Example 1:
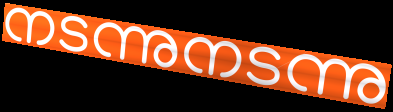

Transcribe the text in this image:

നടന്നുനടന്നു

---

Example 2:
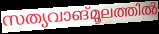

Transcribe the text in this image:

സത്യവാങ്മൂലത്തിൽ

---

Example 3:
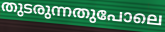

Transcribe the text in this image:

തുടരുന്നതുപോലെ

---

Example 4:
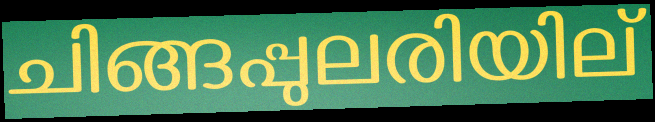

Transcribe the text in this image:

ചിങ്ങപ്പുലരിയില്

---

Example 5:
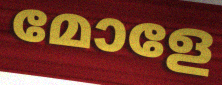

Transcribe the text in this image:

മോളേ